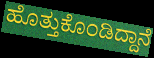
ಹೊತ್ತುಕೊಂಡಿದ್ದಾನೆ